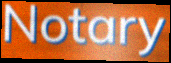
Notary